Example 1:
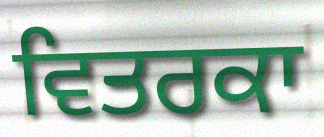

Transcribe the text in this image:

ਵਿਤਰਕਾ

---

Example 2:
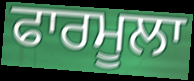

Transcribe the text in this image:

ਫਾਰਮੂਲਾ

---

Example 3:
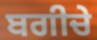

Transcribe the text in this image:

ਬਗੀਚੇ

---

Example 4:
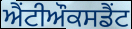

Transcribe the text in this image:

ਐਂਟੀਔਕਸਡੈਂਟ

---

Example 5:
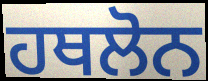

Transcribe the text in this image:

ਹਥਲੋਨ